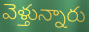
వెళ్తున్నారు